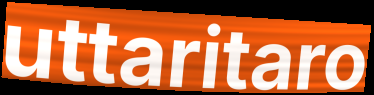
uttaritaro